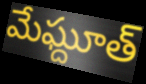
మేఘ్దూత్